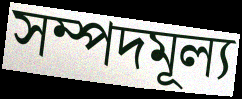
সম্পদমূল্য